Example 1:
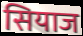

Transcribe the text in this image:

सियाज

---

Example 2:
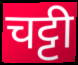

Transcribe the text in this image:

चट्टी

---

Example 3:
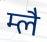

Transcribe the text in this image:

म्लै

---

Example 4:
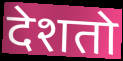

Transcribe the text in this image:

देशतो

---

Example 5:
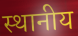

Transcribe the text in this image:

स्थानीय